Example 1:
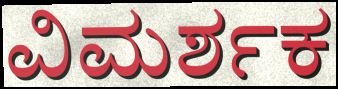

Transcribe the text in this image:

ವಿಮರ್ಶಕ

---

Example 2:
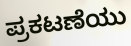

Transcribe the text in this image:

ಪ್ರಕಟಣೆಯು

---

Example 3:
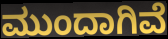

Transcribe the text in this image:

ಮುಂದಾಗಿವೆ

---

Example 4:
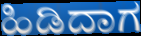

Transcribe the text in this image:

ಹಿಡಿದಾಗ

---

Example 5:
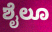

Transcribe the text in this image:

ಶೈಲೂ